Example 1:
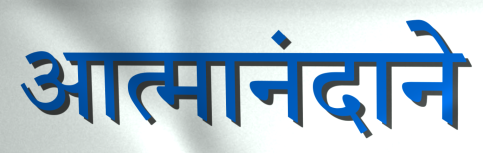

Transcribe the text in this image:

आत्मानंदाने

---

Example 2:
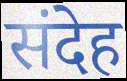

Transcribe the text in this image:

संदेह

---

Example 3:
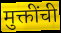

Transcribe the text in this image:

मुक्तींची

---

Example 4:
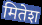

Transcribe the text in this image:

मितेश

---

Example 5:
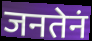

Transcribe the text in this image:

जनतेनं